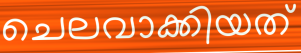
ചെലവാക്കിയത്